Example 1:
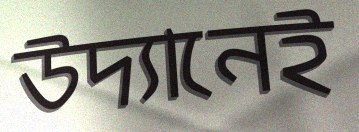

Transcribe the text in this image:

উদ্যানেই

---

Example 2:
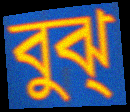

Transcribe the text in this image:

বুঝ্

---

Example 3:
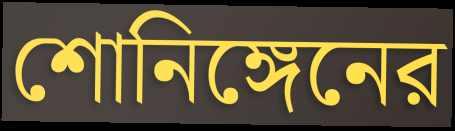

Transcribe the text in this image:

শোনিঙ্গেনের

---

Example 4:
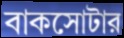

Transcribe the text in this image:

বাকসোটার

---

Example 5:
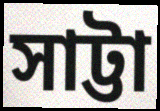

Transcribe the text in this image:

সাট্টা